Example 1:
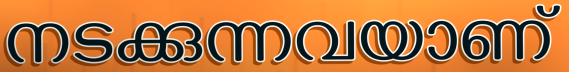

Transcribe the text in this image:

നടക്കുന്നവയാണ്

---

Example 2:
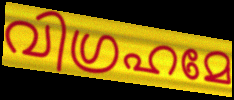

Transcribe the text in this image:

വിഗ്രഹമേ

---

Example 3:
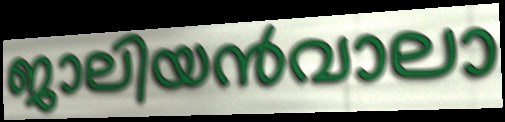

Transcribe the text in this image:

ജാലിയൻവാലാ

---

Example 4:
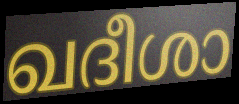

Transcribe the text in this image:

ഖദീശാ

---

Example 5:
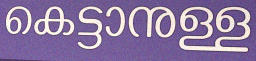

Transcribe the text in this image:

കെട്ടാനുള്ള